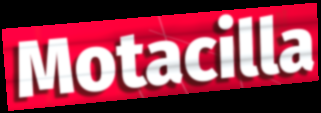
Motacilla